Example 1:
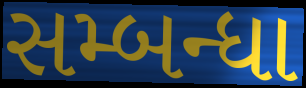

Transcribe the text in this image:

સમ્બન્ધા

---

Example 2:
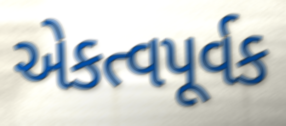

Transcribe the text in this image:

એકત્વપૂર્વક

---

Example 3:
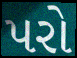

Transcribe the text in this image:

પરો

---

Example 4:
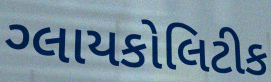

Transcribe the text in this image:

ગ્લાયકોલિટીક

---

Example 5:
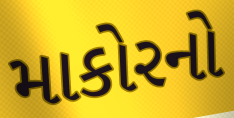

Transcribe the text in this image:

માકોરનો